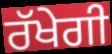
ਰੱਖੇਗੀ